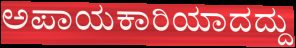
ಅಪಾಯಕಾರಿಯಾದದ್ದು